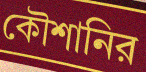
কৌশানির